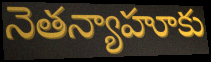
నెతన్యాహూకు